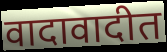
वादावादीत